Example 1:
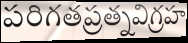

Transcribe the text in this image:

పరిగతప్రత్నవిగ్రహ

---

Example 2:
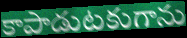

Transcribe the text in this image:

కాపాడుటకుగాను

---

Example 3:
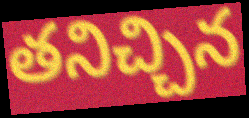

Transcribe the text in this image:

తనిచ్చిన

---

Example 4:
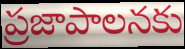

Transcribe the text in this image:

ప్రజాపాలనకు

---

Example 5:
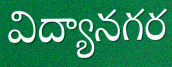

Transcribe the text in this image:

విద్యానగర